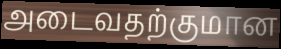
அடைவதற்குமான